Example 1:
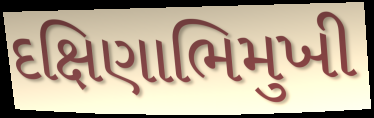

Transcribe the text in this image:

દક્ષિણાભિમુખી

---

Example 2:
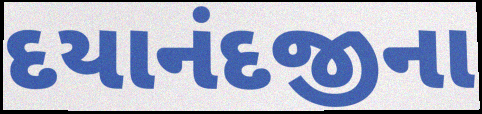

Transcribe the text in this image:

દયાનંદજીના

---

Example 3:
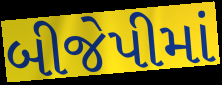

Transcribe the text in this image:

બીજેપીમાં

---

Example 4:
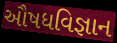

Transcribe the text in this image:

ઔષધવિજ્ઞાન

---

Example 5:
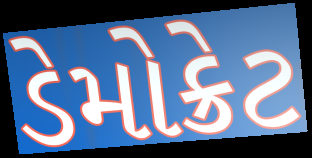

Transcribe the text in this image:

ડેમોક્રેટ